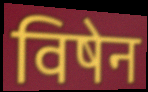
विषेन